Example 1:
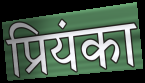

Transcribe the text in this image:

प्रियंका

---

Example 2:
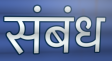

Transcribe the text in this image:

संबंध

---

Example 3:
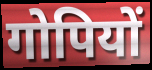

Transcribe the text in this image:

गोपियों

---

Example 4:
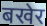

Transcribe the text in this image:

बखेर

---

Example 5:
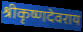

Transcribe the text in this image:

श्रीकृष्णदेवराय